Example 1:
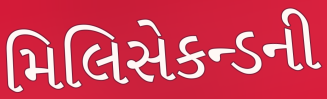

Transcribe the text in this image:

મિલિસેકન્ડની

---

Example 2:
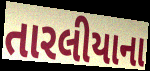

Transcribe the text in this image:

તારલીયાના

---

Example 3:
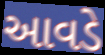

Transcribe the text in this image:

આવડે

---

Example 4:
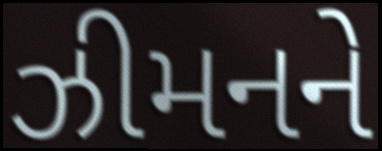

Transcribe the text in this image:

ઝીમનને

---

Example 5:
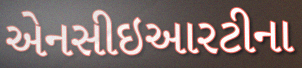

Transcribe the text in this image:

એનસીઇઆરટીના